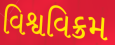
વિશ્વવિક્રમ